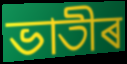
ভাতীৰ